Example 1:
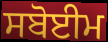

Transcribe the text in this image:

ਸਬੋਈਮ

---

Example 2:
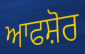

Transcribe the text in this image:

ਆਫਸ਼ੋਰ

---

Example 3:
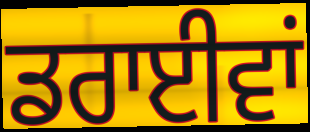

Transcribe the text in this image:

ਡਰਾਈਵਾਂ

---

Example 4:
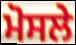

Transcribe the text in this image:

ਮੋਸਲੇ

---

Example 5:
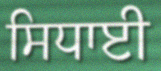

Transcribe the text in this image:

ਸਿਧਾਈ